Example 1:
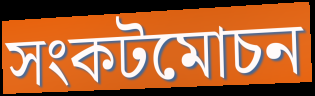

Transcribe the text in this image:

সংকটমোচন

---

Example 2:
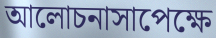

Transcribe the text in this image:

আলোচনাসাপেক্ষে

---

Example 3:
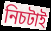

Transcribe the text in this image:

নিচটাই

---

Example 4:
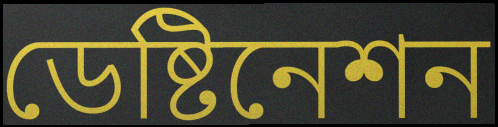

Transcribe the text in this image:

ডেষ্টিনেশন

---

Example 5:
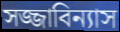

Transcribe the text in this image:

সজ্জাবিন্যাস